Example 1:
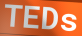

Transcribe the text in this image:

TEDs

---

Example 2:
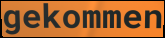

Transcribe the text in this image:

gekommen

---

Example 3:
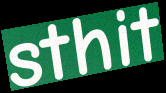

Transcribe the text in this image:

sthit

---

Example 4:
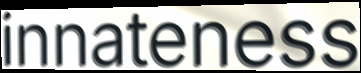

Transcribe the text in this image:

innateness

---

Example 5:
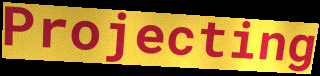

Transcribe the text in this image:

Projecting